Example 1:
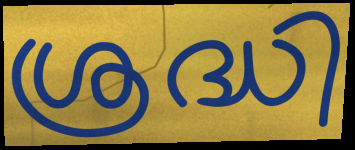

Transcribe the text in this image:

ശ്രദ്ധി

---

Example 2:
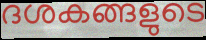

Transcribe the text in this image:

ദശകങ്ങളുടെ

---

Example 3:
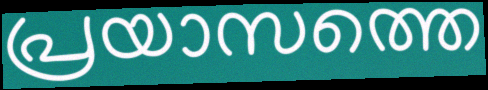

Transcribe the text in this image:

പ്രയാസത്തെ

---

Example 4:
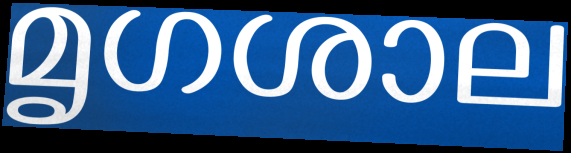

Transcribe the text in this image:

മൃഗശാല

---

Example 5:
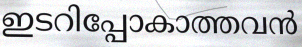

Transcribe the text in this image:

ഇടറിപ്പോകാത്തവൻ